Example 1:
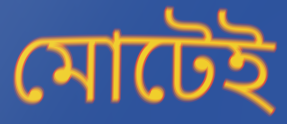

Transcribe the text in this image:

মোটেই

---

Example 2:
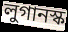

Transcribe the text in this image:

লুগানস্ক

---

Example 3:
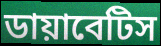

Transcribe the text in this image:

ডায়াবেটিস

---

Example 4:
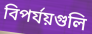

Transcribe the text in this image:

বিপর্যয়গুলি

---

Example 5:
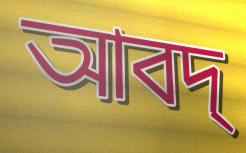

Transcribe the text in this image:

আবদ্